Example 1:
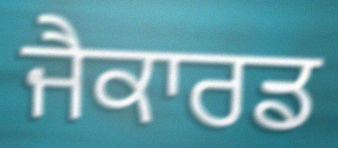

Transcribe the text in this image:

ਜੈਕਾਰਡ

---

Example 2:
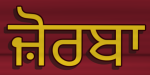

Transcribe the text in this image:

ਜ਼ੋਰਬਾ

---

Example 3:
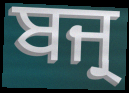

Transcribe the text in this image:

ਬਜ੍ਰ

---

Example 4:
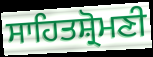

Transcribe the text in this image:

ਸਾਹਿਤਸ਼੍ਰੋਮਣੀ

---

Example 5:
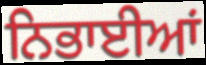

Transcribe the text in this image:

ਨਿਭਾਈਆਂ